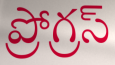
ప్రోగ్రస్